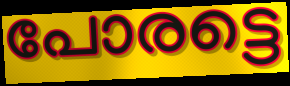
പോരട്ടെ